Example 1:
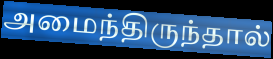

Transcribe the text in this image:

அமைந்திருந்தால்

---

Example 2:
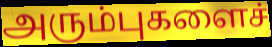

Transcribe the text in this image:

அரும்புகளைச்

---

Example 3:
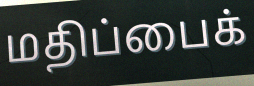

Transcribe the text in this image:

மதிப்பைக்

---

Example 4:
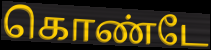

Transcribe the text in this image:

கொண்டே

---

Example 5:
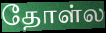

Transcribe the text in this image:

தோள்ல